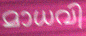
മാധവി